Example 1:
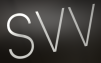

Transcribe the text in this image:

SVV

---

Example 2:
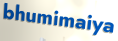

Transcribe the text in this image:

bhumimaiya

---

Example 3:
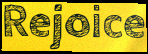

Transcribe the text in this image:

Rejoice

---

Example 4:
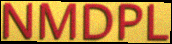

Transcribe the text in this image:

NMDPL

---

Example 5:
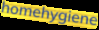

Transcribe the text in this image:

homehygiene